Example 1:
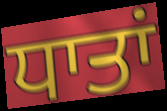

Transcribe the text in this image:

ਧਾਤਾਂ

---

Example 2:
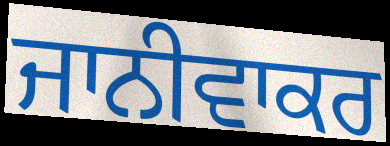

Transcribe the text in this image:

ਜਾਨੀਵਾਕਰ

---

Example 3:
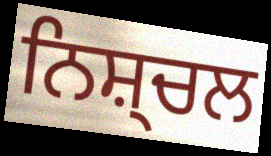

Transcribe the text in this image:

ਨਿਸ਼੍ਚਲ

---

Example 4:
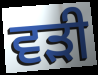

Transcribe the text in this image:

ਵੜੀ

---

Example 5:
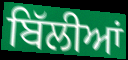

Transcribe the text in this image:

ਬਿੱਲੀਆਂ